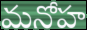
మనోహ